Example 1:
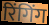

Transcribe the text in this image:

रिंगिंग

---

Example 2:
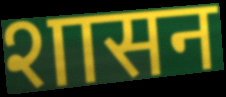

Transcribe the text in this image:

शासन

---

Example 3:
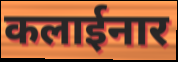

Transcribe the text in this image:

कलाईनार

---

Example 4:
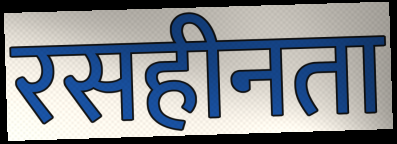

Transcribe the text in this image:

रसहीनता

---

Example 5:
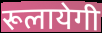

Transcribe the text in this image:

रूलायेगी